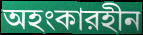
অহংকারহীন